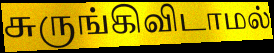
சுருங்கிவிடாமல்